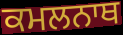
ਕਮਲਨਾਥ